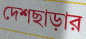
দেশছাড়ার